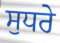
ਸੁਧਰੇ